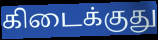
கிடைக்குது